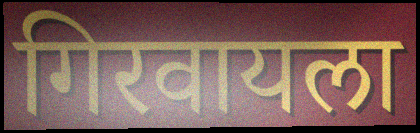
गिरवायला